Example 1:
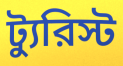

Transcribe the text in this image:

ট্যুরিস্ট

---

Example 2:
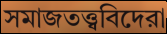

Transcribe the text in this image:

সমাজতত্ত্ববিদেরা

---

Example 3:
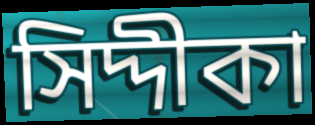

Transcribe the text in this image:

সিদ্দীকা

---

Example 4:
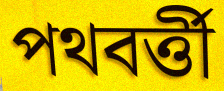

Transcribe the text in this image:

পথবর্ত্তী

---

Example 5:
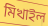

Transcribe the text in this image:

মিখাইল